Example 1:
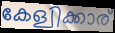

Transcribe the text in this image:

കേള്വിക്കാര്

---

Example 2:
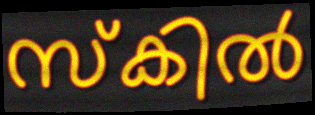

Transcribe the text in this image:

സ്കിൽ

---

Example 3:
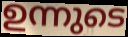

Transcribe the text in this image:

ഉന്നുടെ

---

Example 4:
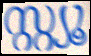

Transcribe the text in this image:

സ്റ്റ്യൂ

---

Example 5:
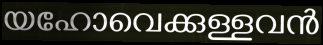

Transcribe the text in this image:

യഹോവെക്കുള്ളവൻ